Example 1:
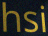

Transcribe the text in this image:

hsi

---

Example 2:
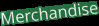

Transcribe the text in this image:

Merchandise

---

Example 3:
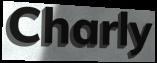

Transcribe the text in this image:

Charly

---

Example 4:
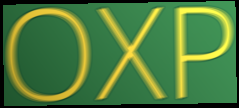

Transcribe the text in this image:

OXP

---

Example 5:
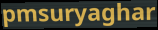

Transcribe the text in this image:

pmsuryaghar